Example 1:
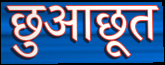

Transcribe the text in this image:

छुआछूत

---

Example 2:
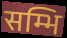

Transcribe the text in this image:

सम्भि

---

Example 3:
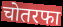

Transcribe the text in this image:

चोतरफा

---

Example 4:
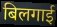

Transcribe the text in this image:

बिलगाई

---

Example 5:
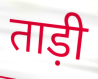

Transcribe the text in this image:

ताड़ी